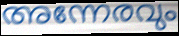
അന്നേരവും